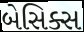
બેસિક્સ